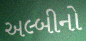
અલ્બીનો